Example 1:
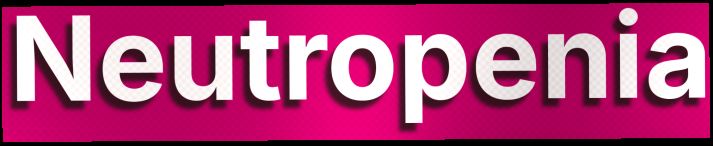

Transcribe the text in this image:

Neutropenia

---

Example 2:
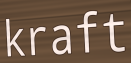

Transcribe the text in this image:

kraft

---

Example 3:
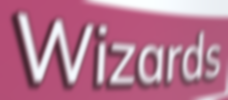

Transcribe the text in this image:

Wizards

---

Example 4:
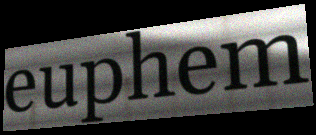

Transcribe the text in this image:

euphem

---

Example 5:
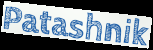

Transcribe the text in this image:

Patashnik